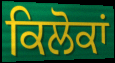
ਕਿਲੋਕਾਂ